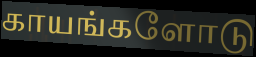
காயங்களோடு